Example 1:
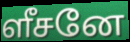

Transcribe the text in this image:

ளீசனே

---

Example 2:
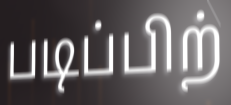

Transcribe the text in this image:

படிப்பிற்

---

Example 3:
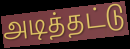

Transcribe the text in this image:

அடித்தட்டு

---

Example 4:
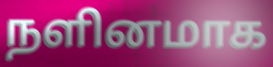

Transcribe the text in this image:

நளினமாக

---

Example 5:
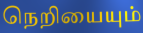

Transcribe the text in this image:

நெறியையும்